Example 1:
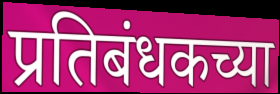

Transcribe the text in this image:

प्रतिबंधकच्या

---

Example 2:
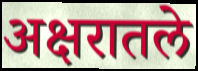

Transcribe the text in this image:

अक्षरातले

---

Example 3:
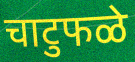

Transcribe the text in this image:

चाटुफळे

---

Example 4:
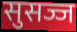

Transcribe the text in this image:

सुसज्ज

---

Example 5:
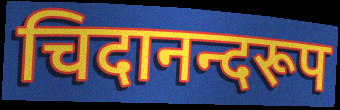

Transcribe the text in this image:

चिदानन्दरूप